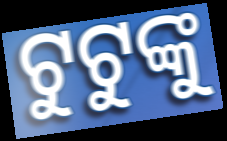
ଟୁଟୁଙ୍କୁ